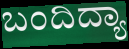
ಬಂದಿದ್ಯಾ